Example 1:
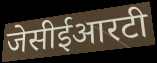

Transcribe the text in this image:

जेसीईआरटी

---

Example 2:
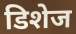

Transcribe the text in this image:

डिशेज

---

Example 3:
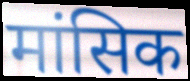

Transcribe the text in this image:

मांसिक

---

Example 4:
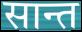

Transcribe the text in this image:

सान्त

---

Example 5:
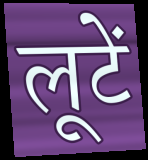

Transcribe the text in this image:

लूटें